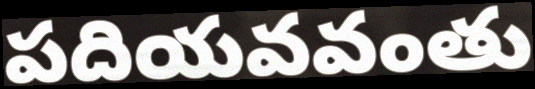
పదియవవంతు